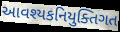
આવશ્યકનિયુક્તિગત